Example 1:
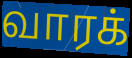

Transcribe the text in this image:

வாரக்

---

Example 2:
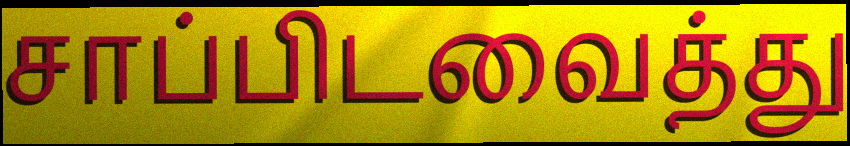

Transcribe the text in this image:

சாப்பிடவைத்து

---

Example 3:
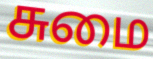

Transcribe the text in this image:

சுமை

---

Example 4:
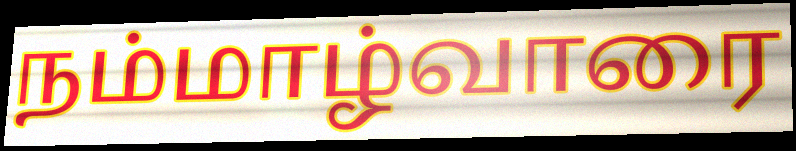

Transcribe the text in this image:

நம்மாழ்வாரை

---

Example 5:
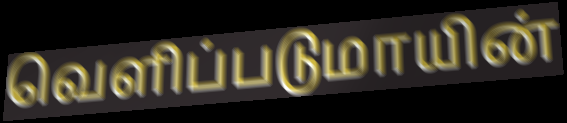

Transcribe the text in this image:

வெளிப்படுமாயின்